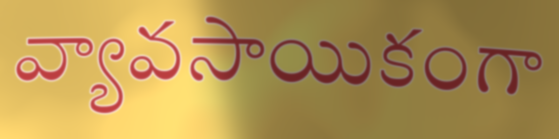
వ్యావసాయికంగా